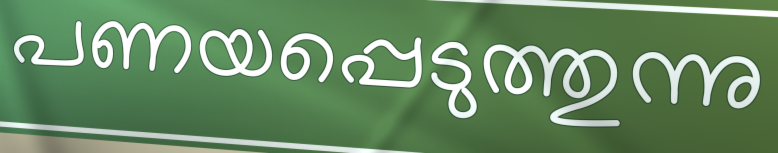
പണയപ്പെടുത്തുന്നു